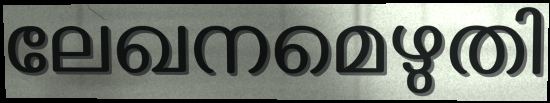
ലേഖനമെഴുതി